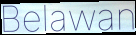
Belawan